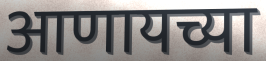
आणायच्या